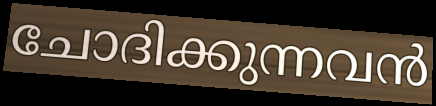
ചോദിക്കുന്നവൻ